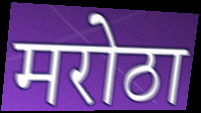
मरोठा